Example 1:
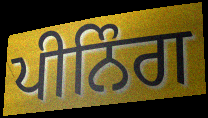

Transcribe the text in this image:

ਪੀਨਿੰਗ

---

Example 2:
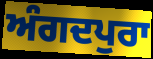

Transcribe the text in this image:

ਅੰਗਦਪੁਰਾ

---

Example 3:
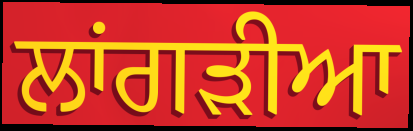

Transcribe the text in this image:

ਲਾਂਗੜੀਆ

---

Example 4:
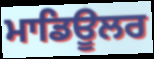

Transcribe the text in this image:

ਮਾਡਿਊਲਰ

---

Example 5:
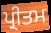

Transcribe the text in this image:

ਪ੍ਰੀਤਮ